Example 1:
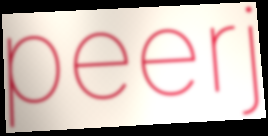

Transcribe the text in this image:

peerj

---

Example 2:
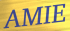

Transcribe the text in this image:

AMIE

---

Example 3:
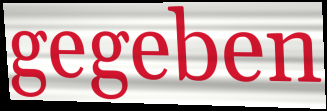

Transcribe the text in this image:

gegeben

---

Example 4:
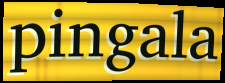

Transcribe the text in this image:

pingala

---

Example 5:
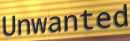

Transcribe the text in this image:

Unwanted